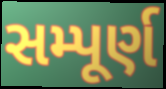
સમ્પૂર્ણ